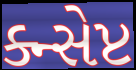
ક્ન્સેપ્ટ